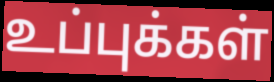
உப்புக்கள்